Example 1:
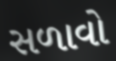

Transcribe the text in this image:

સળાવો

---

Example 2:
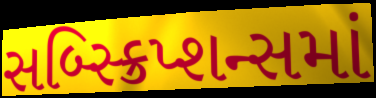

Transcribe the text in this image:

સબ્સ્ક્રિપ્શન્સમાં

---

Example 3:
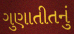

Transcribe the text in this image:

ગુણાતીતનું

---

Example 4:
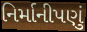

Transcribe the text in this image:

નિર્માનીપણું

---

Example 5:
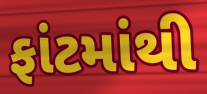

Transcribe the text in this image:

ફાંટમાંથી